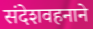
संदेशवहनाने